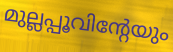
മുല്ലപ്പൂവിന്റേയും